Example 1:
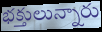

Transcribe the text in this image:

భక్తులున్నారు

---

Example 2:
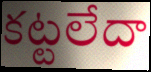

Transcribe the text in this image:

కట్టలేదా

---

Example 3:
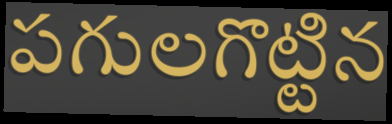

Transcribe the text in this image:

పగులగొట్టిన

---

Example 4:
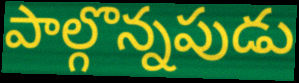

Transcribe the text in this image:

పాల్గొన్నపుడు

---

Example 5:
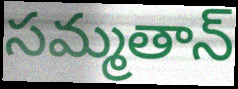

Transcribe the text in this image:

సమ్మతాన్